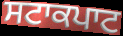
ਸਟਾਕਪਾਟ